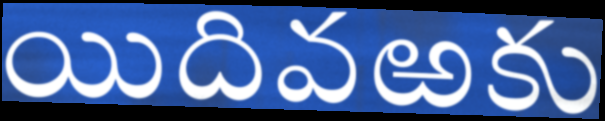
యిదివఱకు